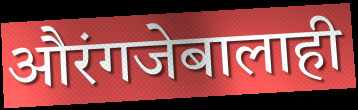
औरंगजेबालाही